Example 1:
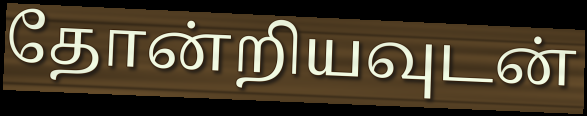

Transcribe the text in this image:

தோன்றியவுடன்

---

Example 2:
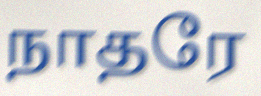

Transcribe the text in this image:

நாதரே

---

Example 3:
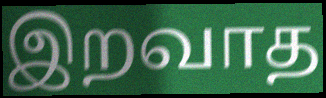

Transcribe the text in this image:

இறவாத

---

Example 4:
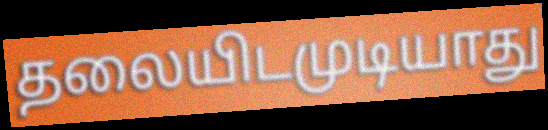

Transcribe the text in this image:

தலையிடமுடியாது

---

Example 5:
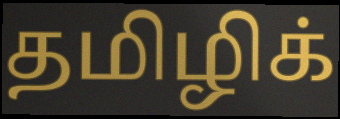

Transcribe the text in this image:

தமிழிக்